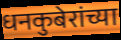
धनकुबेरांच्या